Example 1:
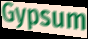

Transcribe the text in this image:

Gypsum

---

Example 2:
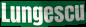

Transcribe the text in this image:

Lungescu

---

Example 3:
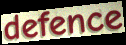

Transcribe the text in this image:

defence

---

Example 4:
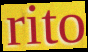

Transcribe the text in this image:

rito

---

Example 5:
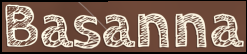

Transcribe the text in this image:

Basanna